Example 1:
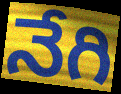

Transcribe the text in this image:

నేగి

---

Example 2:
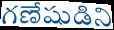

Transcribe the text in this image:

గణేషుడిని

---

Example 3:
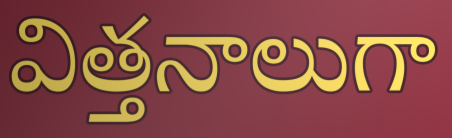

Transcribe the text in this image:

విత్తనాలుగా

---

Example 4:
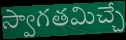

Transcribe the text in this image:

స్వాగతమిచ్చే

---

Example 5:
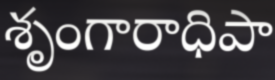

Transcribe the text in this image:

శృంగారాధిపా